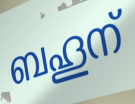
ബഹൂന്